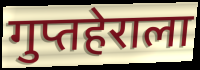
गुप्तहेराला